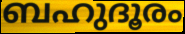
ബഹുദൂരം